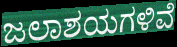
ಜಲಾಶಯಗಳಿವೆ